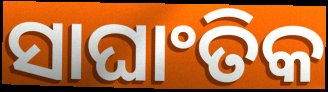
ସାଘାଂତିକ